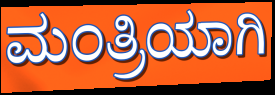
ಮಂತ್ರಿಯಾಗಿ